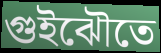
গুইঝৌতে